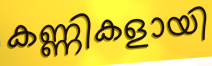
കണ്ണികളായി